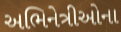
અભિનેત્રીઓના